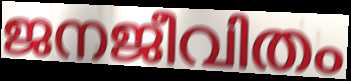
ജനജീവിതം